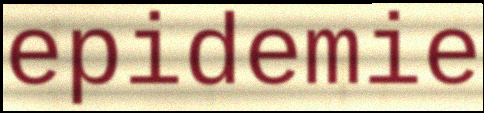
epidemie